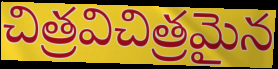
చిత్రవిచిత్రమైన